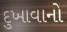
દુખાવાનો